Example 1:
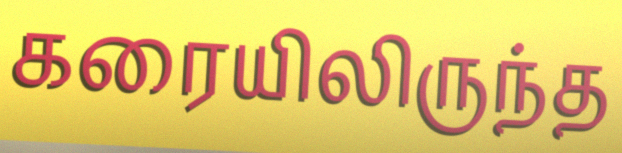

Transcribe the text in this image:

கரையிலிருந்த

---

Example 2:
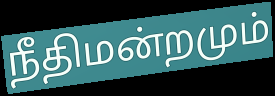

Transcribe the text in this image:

நீதிமன்றமும்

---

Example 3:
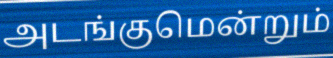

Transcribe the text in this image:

அடங்குமென்றும்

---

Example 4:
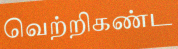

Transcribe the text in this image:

வெற்றிகண்ட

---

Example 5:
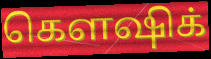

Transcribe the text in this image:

கௌஷிக்